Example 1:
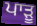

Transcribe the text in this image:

ਪਾੜੂ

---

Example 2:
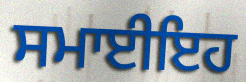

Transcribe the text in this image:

ਸਮਾਈਇਹ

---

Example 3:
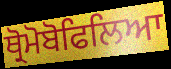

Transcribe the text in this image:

ਥ੍ਰੋਮੋਬੋਫਿਲਿਆ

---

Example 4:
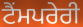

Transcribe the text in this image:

ਟੈਂਮਪਰੇਰੀ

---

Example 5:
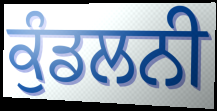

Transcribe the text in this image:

ਕੁੰਡਲਨੀ